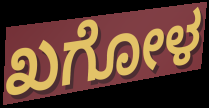
ಖಗೋಳ